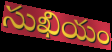
సుఖియం